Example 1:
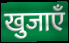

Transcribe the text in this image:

खुजाएँ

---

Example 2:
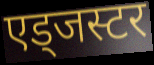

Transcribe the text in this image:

एड्जस्टर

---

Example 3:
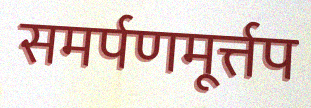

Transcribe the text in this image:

समर्पणमूर्त्तप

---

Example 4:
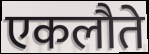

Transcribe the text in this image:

एकलौते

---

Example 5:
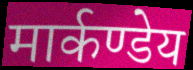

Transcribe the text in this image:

मार्कण्डेय